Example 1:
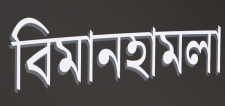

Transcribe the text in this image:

বিমানহামলা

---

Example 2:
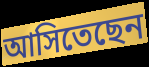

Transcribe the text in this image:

আসিতেছেন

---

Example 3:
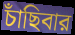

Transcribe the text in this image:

চাঁছিবার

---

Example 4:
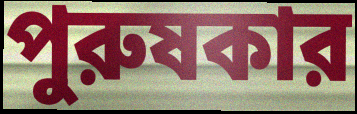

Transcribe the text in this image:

পুরুষকার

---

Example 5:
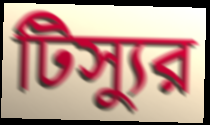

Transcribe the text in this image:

টিস্যুর